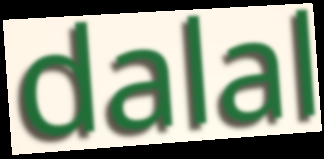
dalal